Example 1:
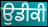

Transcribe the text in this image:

ਉਡੀਕੀ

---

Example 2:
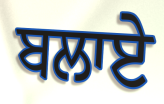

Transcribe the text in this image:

ਬਲਾਏ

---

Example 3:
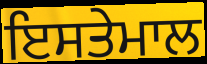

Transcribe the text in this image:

ਇਸਤੇਮਾਲ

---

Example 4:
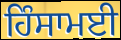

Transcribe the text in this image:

ਹਿੰਸਾਮਈ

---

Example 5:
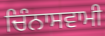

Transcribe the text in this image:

ਚਿੰਨਾਸਵਾਮੀ